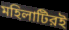
মহিলাটিরই